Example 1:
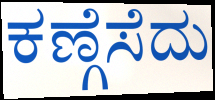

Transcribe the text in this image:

ಕಣ್ಗೆಸೆದು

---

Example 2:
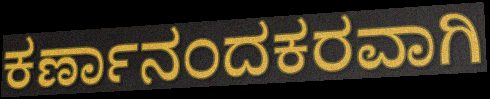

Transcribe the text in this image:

ಕರ್ಣಾನಂದಕರವಾಗಿ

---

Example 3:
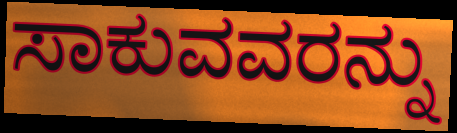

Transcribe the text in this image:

ಸಾಕುವವರನ್ನು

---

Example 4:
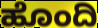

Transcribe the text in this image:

ಹೊಂದಿ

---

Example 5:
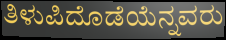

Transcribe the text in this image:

ತಿಳುಪಿದೊಡೆಯೆನ್ನವರು